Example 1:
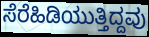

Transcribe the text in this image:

ಸೆರೆಹಿಡಿಯುತ್ತಿದ್ದವು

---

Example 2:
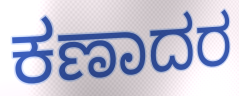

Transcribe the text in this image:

ಕಣಾದರ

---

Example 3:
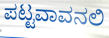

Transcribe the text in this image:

ಪಟ್ಟವಾವನಲಿ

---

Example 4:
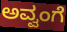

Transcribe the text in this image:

ಅವ್ವಂಗೆ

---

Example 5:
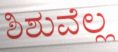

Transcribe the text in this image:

ಶಿಶುವೆಲ್ಲ